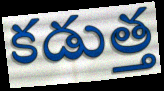
కడుత్త